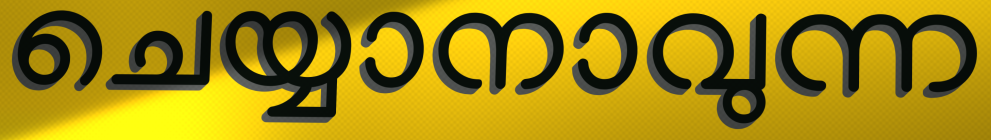
ചെയ്യാനാവുന്ന